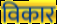
विकार